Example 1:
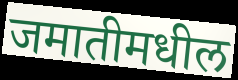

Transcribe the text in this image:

जमातीमधील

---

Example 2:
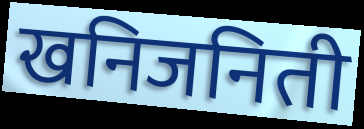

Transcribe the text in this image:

खनिजनिती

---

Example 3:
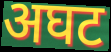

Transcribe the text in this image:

अघट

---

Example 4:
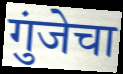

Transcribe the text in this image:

गुंजेचा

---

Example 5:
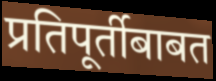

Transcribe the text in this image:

प्रतिपूर्तीबाबत